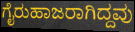
ಗೈರುಹಾಜರಾಗಿದ್ದವು